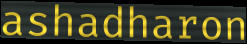
ashadharon